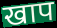
खाप